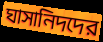
ঘাসানিদদের